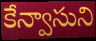
కేన్వాసుని